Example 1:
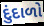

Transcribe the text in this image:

દુંદાળો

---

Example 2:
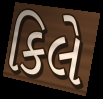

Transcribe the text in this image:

કિલે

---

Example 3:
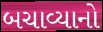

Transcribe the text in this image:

બચાવ્યાનો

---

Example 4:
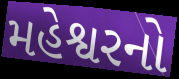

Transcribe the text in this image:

મહેશ્વરનો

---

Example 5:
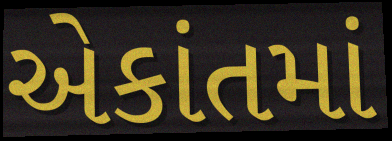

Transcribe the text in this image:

એકાંતમાં